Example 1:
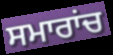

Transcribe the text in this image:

ਸਮਾਰਾਂਚ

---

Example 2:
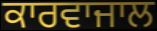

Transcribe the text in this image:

ਕਾਰਵਾਜਾਲ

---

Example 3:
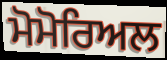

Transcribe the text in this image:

ਮੋਮੋਰਿਅਲ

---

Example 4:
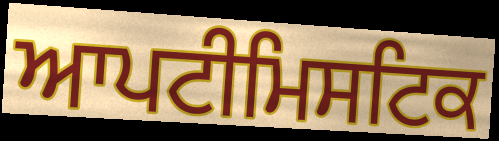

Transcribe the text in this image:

ਆਪਟੀਮਿਸਟਿਕ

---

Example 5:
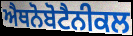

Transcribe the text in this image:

ਐਥਨੋਬੋਟੈਨੀਕਲ